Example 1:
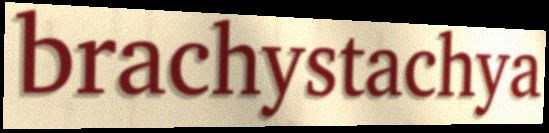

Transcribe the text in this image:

brachystachya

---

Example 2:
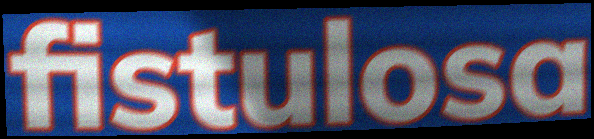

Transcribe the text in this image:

fistulosa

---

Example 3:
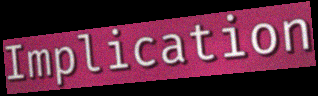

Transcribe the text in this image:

Implication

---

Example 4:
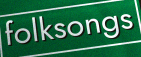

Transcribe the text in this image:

folksongs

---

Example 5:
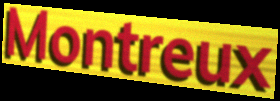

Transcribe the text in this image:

Montreux